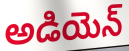
అడియెన్